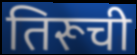
तिरूची